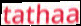
tathaa